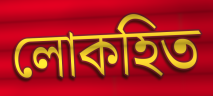
লোকহিত